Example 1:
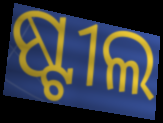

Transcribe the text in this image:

ଷ୍ଟୀଲ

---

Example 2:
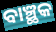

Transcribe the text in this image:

ବାଞ୍ଛକ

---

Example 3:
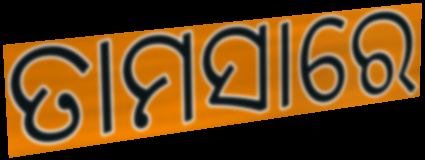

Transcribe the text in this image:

ତାମସାରେ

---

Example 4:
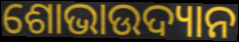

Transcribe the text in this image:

ଶୋଭାଉଦ୍ୟାନ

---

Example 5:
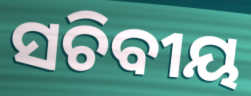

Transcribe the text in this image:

ସଚିବୀୟ